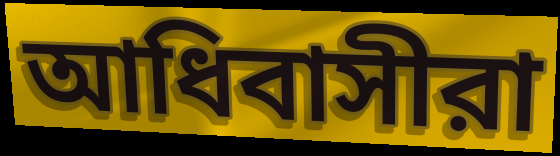
আধিবাসীরা